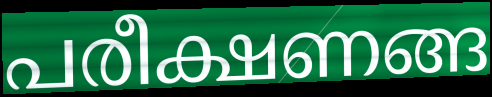
പരീക്ഷണങ്ങ